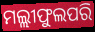
ମଲ୍ଲୀଫୁଲପରି